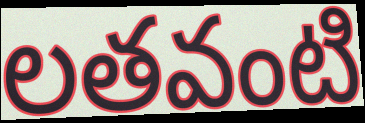
లతవంటి